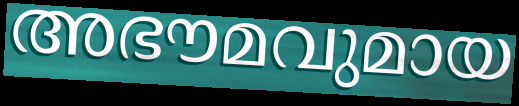
അഭൗമവുമായ